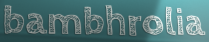
bambhrolia